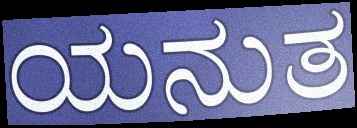
ಯನುತ